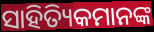
ସାହିତ୍ୟିକମାନଙ୍କ